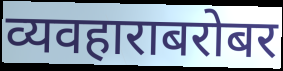
व्यवहाराबरोबर